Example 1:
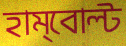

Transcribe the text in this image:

হাম্‌বোল্ট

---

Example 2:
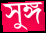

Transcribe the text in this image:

সুঙ্গ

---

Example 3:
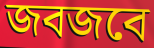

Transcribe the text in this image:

জবজবে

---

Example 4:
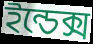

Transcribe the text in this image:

ইন্ডেক্স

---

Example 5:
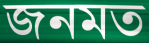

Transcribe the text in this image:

জনমত